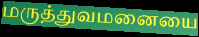
மருத்துவமனையை